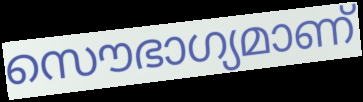
സൌഭാഗ്യമാണ്